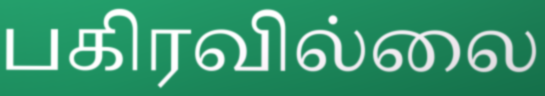
பகிரவில்லை